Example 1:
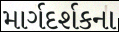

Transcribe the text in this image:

માર્ગદર્શકના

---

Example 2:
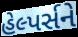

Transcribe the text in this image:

હેલ્પર્સને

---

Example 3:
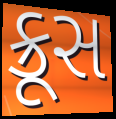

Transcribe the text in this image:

ક્રૂસ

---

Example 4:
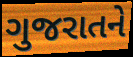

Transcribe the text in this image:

ગુજરાતને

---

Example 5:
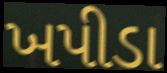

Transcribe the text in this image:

ખપીડા